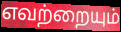
எவற்றையும்